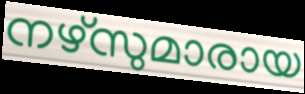
നഴ്സുമാരായ